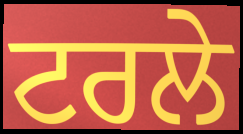
ਟਰਲੇ